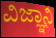
ವಿಜ್ಞಾನಿ